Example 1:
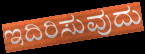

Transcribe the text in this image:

ಇದಿರಿಸುವುದು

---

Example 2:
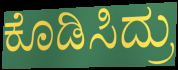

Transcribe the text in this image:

ಕೊಡಿಸಿದ್ರು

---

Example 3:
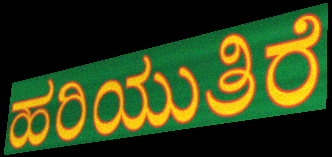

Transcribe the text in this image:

ಹರಿಯುತಿರೆ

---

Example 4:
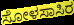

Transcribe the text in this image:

ಸೋಳಸಾಸಿರ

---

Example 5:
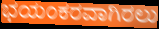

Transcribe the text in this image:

ಭಯಂಕರವಾಗಿರಲು